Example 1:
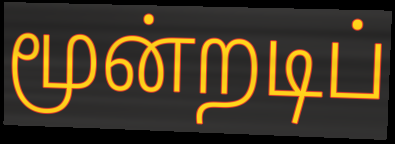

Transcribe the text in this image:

மூன்றடிப்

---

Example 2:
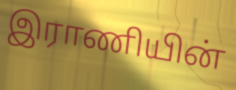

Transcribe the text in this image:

இராணியின்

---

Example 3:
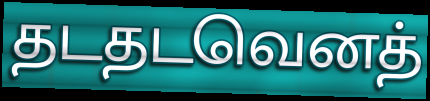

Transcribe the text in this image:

தடதடவெனத்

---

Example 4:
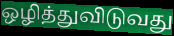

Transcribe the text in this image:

ஒழித்துவிடுவது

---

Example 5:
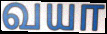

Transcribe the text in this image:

வயா